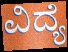
ವಿದ್ಯೆ